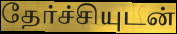
தேர்ச்சியுடன்